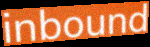
inbound